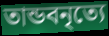
তান্ডবনৃত্যে